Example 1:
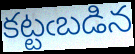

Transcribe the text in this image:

కట్టఁబడిన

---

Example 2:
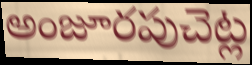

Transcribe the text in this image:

అంజూరపుచెట్ల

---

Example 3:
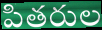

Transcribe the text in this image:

పితరుల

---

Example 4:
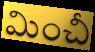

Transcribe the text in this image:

మించీ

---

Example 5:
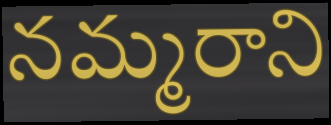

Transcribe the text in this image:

నమ్మరాని